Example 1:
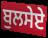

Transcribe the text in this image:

ਬੁਲਸੇਏ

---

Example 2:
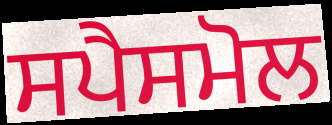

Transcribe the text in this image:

ਸਪੈਸਮੋਲ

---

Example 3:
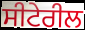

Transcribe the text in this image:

ਸੀਟੇਰੀਲ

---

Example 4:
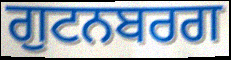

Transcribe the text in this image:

ਗੁਟਨਬਰਗ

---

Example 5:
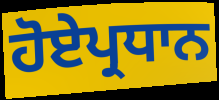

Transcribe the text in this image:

ਹੋਏਪ੍ਰਧਾਨ